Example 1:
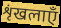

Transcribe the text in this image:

शृंखलाएँ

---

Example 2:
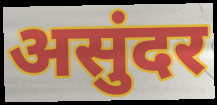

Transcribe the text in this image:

असुंदर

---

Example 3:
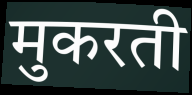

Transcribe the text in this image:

मुकरती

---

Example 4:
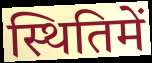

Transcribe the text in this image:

स्थितिमें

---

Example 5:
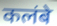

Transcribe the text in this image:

कलंबे